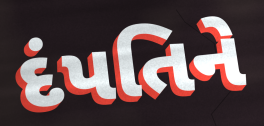
દંપતિને